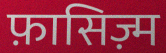
फ़ासिज़्म